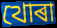
থোৰা